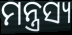
ମନ୍ତ୍ରସ୍ୟ